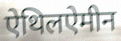
ऐथिलऐमीन